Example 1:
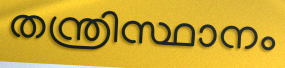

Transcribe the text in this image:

തന്ത്രിസ്ഥാനം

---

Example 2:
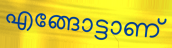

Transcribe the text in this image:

എങ്ങോട്ടാണ്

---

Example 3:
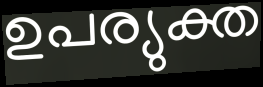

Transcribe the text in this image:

ഉപര്യുക്ത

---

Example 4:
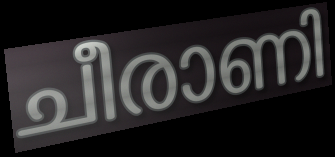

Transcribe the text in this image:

ചീരാണി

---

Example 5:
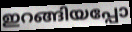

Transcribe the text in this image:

ഇറങ്ങിയപ്പോ